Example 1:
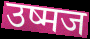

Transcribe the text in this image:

उष्मज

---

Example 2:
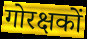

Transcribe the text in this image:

गोरक्षकों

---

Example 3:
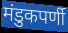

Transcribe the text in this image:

मंडुकपर्णी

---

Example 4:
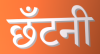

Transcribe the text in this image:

छँटनी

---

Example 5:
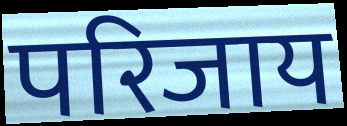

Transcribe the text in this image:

परिजाय